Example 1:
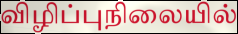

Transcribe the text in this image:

விழிப்புநிலையில்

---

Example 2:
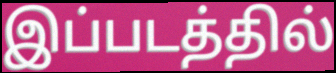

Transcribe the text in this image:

இப்படத்தில்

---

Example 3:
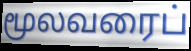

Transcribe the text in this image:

மூலவரைப்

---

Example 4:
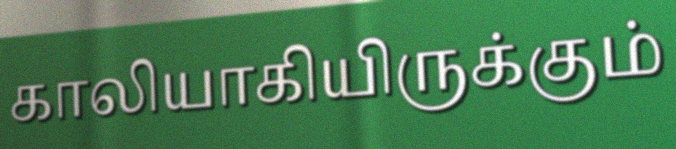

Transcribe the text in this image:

காலியாகியிருக்கும்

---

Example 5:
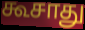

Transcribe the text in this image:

கூசாது